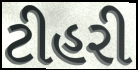
ટીહરી